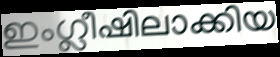
ഇംഗ്ലീഷിലാക്കിയ